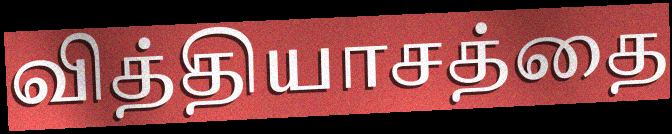
வித்தியாசத்தை